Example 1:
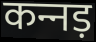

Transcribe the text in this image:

कन्‍नड़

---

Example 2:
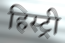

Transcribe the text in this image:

हिस्ट्री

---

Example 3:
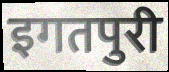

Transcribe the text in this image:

इगतपुरी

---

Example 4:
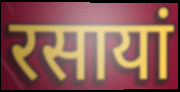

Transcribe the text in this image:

रसायां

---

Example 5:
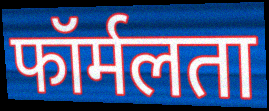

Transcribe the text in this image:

फॉर्मलता